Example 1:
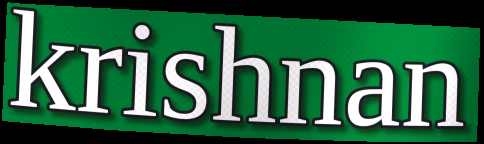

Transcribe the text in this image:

krishnan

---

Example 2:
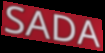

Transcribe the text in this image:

SADA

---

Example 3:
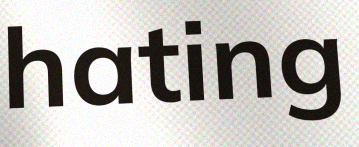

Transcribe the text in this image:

hating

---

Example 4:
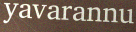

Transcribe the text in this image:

yavarannu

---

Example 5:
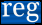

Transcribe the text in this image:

reg